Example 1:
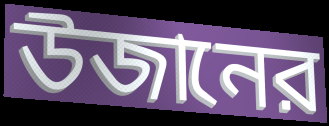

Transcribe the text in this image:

উজানের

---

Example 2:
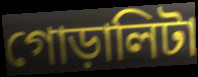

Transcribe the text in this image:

গোড়ালিটা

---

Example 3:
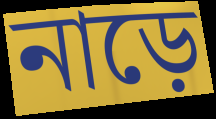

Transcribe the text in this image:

নাড়ে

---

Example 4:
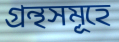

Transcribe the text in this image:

গ্রন্থসমূহে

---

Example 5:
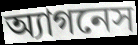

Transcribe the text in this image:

অ্যাগনেস